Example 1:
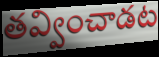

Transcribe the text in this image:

తవ్వించాడట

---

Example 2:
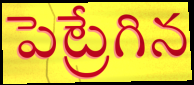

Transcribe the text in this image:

పెట్రేగిన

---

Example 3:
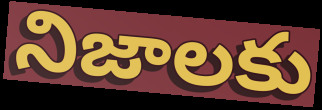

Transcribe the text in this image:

నిజాలకు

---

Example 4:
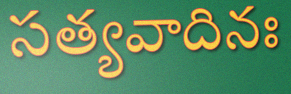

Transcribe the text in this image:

సత్యవాదినః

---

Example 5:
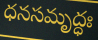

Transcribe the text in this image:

ధనసమృద్ధః